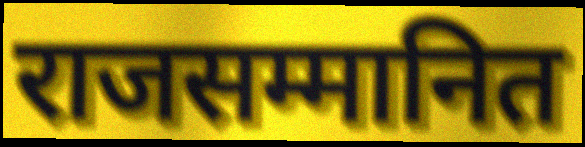
राजसम्मानित